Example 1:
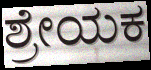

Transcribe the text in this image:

ಶ್ರೇಯಕ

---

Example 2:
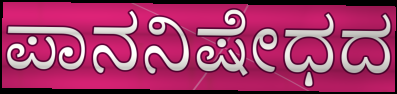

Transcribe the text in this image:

ಪಾನನಿಷೇಧದ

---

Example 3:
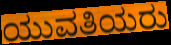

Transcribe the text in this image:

ಯುವತಿಯರು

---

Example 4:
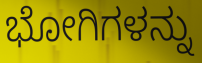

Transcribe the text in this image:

ಭೋಗಿಗಳನ್ನು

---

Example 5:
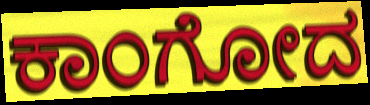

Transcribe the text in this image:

ಕಾಂಗೋದ